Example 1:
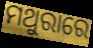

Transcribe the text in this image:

ମଥୁରାରେ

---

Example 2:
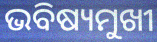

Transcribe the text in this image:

ଭବିଷ୍ୟମୁଖୀ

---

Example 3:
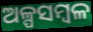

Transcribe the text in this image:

ଅଳ୍ପସମ୍ବଳ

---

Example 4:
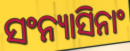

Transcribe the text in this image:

ସଂନ୍ୟାସିନାଂ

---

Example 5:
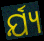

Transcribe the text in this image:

ର୍ଯ୍ୟ